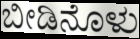
ಬೀಡಿನೊಳು